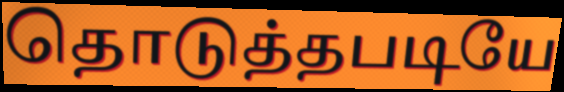
தொடுத்தபடியே